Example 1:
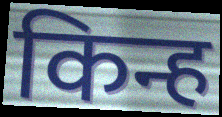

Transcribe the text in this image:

किन्ह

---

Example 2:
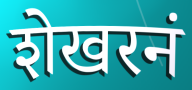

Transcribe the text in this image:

शेखरनं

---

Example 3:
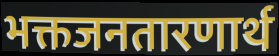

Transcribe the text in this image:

भक्तजनतारणार्थ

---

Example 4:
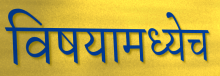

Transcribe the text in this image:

विषयामध्येच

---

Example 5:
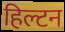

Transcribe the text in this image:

हिल्टन